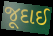
જૂદાઈ